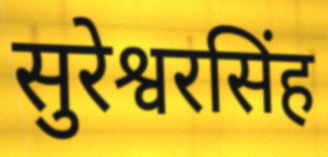
सुरेश्वरसिंह